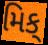
મિક્